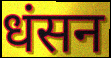
धंसन